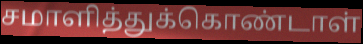
சமாளித்துக்கொண்டாள்